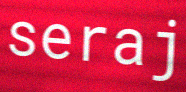
seraj